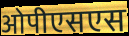
ओपीएसएस